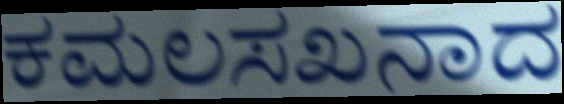
ಕಮಲಸಖನಾದ